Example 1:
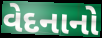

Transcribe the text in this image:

વેદનાનો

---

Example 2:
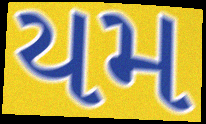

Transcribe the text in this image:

યમ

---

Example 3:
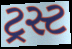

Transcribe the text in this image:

ટ્રસ્ટ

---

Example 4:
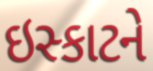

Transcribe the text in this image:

ઇસ્કાટને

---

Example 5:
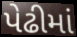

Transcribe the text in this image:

પેઢીમાં